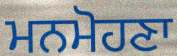
ਮਨਮੋਹਣਾ